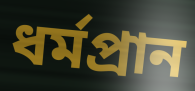
ধর্মপ্রান